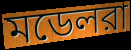
মডেলরা